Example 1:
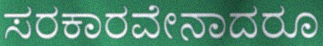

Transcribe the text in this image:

ಸರಕಾರವೇನಾದರೂ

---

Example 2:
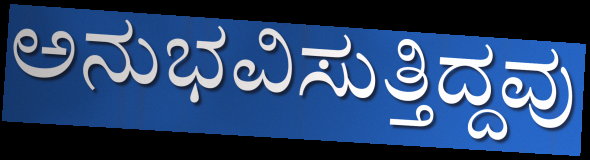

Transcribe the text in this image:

ಅನುಭವಿಸುತ್ತಿದ್ದವು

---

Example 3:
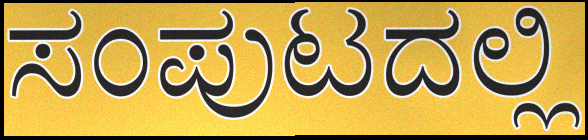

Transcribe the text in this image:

ಸಂಪುಟದಲ್ಲಿ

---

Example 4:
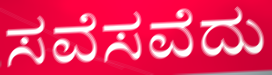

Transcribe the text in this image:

ಸವೆಸವೆದು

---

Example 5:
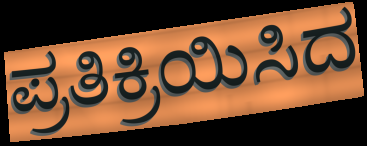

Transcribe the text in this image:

ಪ್ರತಿಕ್ರಿಯಿಸಿದ